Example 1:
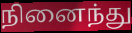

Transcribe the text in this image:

நினைந்து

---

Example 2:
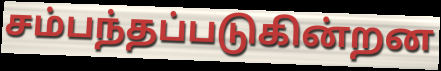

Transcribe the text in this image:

சம்பந்தப்படுகின்றன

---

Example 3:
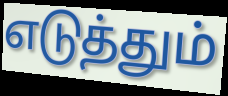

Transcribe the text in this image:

எடுத்தும்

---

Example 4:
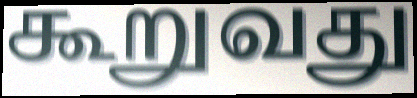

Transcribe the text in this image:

கூறுவது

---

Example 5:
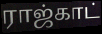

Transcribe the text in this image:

ராஜ்காட்